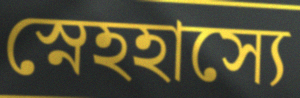
স্নেহহাস্যে